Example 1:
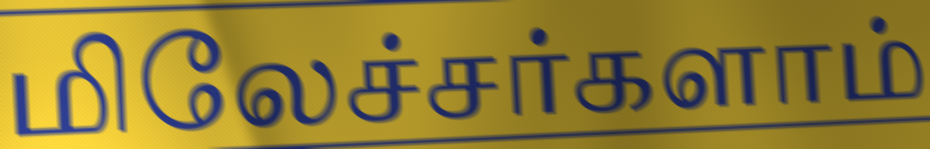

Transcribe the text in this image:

மிலேச்சர்களாம்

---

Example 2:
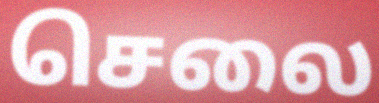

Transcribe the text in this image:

செலை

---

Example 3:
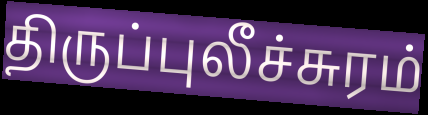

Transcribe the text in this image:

திருப்புலீச்சுரம்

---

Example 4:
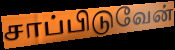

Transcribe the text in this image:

சாப்பிடுவேன்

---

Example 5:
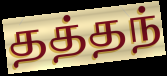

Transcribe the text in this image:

தத்தந்